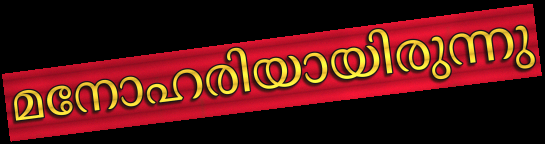
മനോഹരിയായിരുന്നു